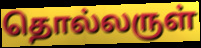
தொல்லருள்